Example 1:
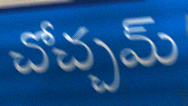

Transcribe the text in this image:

చోచ్చమ్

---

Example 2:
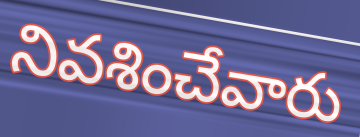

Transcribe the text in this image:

నివశించేవారు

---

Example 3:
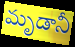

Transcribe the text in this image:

మృడానీ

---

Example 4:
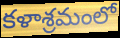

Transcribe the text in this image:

కళాశ్రమంలో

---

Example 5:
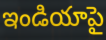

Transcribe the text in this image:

ఇండియాపై